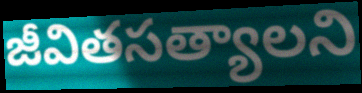
జీవితసత్యాలని